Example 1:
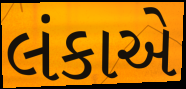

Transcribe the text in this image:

લંકાએ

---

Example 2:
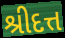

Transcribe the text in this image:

શ્રીદત્ત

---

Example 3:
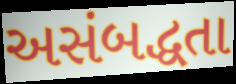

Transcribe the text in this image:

અસંબદ્ધતા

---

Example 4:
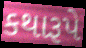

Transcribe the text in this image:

કથારૂપે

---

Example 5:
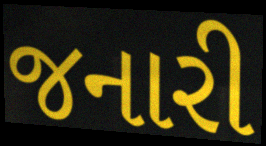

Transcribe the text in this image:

જનારી